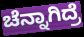
ಚೆನ್ನಾಗಿದ್ರೆ